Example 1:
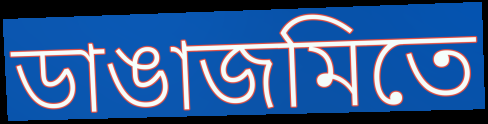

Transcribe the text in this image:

ডাঙাজমিতে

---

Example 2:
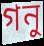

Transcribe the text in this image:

গনু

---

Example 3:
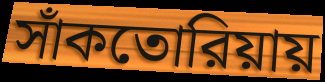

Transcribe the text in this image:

সাঁকতোরিয়ায়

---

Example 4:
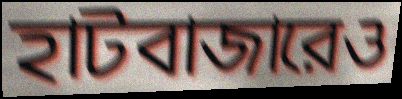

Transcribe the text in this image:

হাটবাজারেও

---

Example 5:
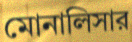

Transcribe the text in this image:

মোনালিসার